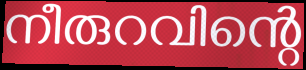
നീരുറവിന്റെ